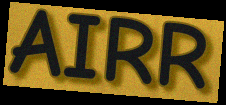
AIRR